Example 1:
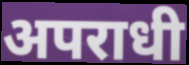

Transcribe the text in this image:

अपराधी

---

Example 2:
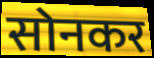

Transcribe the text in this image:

सोनकर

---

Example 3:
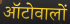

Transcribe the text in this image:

ऑटोवालों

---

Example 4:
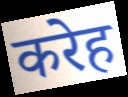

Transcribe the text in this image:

करेह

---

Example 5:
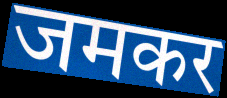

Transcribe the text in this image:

जमकर